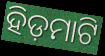
ହିଡ଼ମାଟି